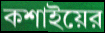
কশাইয়ের